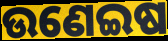
ଉଣେଇଷ